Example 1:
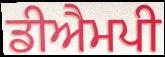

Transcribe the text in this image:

ਡੀਐਮਪੀ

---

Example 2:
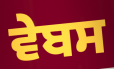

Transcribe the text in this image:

ਵੇਬਸ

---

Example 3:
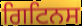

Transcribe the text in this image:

ਗਿਟਿਨਸ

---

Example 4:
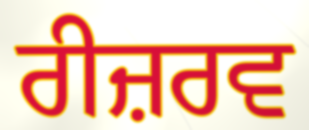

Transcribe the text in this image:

ਰੀਜ਼ਰਵ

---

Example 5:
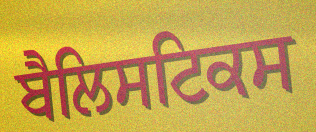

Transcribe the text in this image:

ਬੈਲਿਸਟਿਕਸ